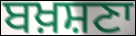
ਬਖ਼ਸ਼ਣਾ